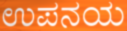
ಉಪನಯ